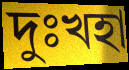
দুঃখহা